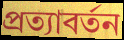
প্ৰত্যাবৰ্তন